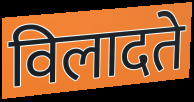
विलादते